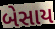
બેસાય